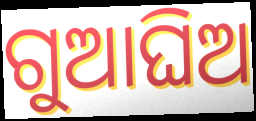
ଗୁଆଘିଅ